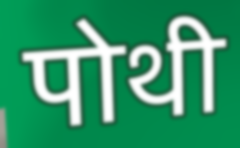
पोथी